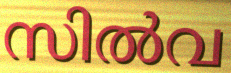
സിൽവ